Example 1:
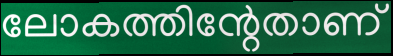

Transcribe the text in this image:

ലോകത്തിന്റേതാണ്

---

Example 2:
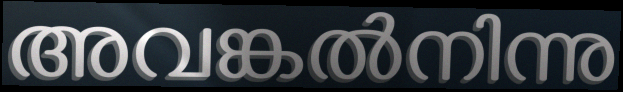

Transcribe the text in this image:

അവങ്കൽനിന്നു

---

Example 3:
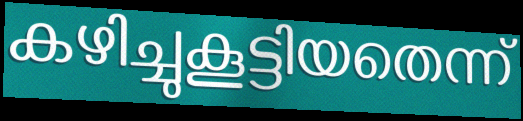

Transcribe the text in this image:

കഴിച്ചുകൂട്ടിയതെന്ന്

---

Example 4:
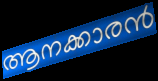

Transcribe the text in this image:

ആനക്കാരൻ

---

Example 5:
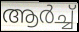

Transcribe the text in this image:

ആർച്ച്